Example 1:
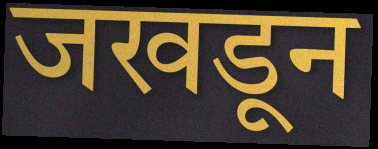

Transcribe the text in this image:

जखडून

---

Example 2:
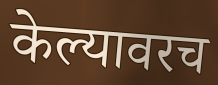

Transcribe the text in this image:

केल्यावरच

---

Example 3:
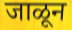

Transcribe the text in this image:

जाळून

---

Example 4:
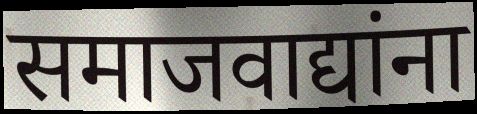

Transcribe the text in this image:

समाजवाद्यांना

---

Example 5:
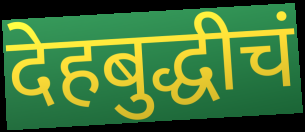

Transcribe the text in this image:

देहबुद्धीचं